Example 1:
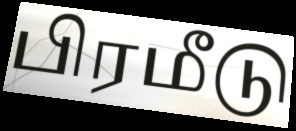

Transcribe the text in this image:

பிரமீடு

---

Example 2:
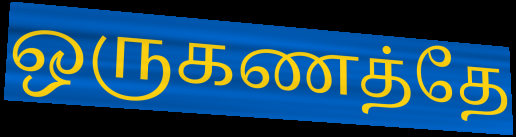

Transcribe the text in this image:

ஒருகணத்தே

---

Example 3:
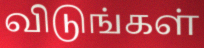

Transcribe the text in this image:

விடுங்கள்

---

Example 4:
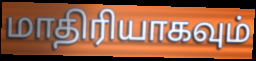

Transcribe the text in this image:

மாதிரியாகவும்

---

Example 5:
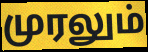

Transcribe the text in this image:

முரலும்